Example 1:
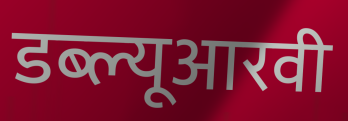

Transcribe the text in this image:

डब्ल्यूआरवी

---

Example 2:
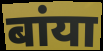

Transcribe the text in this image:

बांया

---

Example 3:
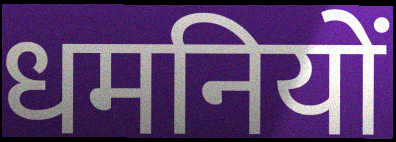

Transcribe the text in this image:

धमनियों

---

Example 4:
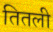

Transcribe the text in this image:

तितली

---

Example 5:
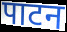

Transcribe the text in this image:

पाटन